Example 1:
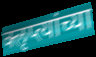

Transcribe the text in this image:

क्लृप्त्यांच्या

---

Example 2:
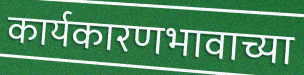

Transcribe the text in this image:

कार्यकारणभावाच्या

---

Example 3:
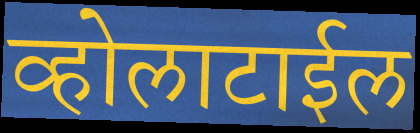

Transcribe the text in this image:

व्होलाटाईल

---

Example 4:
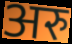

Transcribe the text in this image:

अरु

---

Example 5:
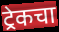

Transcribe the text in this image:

ट्रेकचा